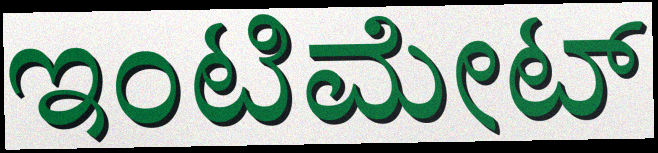
ಇಂಟಿಮೇಟ್